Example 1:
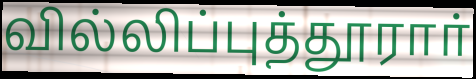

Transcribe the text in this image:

வில்லிப்புத்தூரார்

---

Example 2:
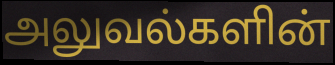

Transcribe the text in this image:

அலுவல்களின்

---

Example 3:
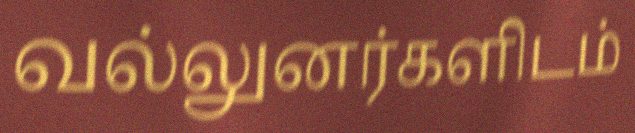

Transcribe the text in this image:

வல்லுனர்களிடம்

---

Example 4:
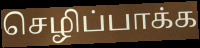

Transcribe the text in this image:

செழிப்பாக்க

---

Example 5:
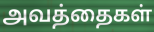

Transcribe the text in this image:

அவத்தைகள்